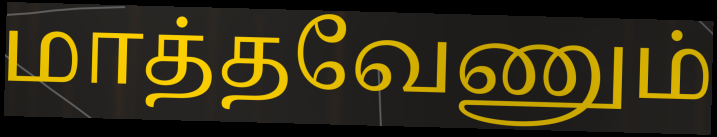
மாத்தவேணும்